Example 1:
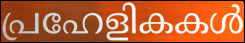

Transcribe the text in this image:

പ്രഹേളികകൾ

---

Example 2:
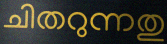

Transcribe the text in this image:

ചിതറുന്നതു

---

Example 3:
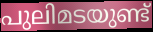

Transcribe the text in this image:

പുലിമടയുണ്ട്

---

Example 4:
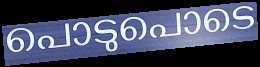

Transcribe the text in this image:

പൊടുപൊടെ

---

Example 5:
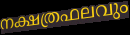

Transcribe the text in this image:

നക്ഷത്രഫലവും